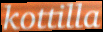
kottilla